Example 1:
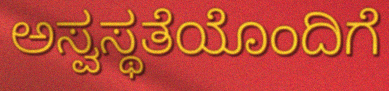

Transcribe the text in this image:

ಅಸ್ವಸ್ಥತೆಯೊಂದಿಗೆ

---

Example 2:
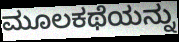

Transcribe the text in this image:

ಮೂಲಕಥೆಯನ್ನು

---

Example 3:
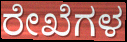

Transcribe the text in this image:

ರೇಖೆಗಳ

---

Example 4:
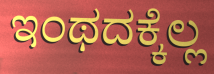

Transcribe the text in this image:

ಇಂಥದಕ್ಕೆಲ್ಲ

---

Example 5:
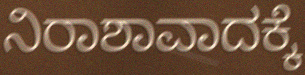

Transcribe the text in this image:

ನಿರಾಶಾವಾದಕ್ಕೆ